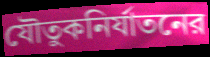
যৌতুকনির্যাতনের